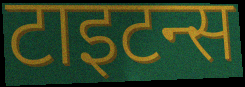
टाइटन्स